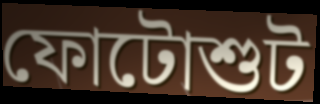
ফোটোশুট